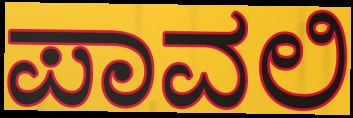
ಪಾವಲಿ